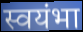
स्वयंभा